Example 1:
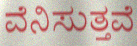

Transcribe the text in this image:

ವೆನಿಸುತ್ತವೆ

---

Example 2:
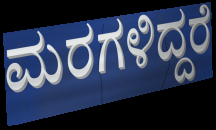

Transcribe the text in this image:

ಮರಗಳಿದ್ದರೆ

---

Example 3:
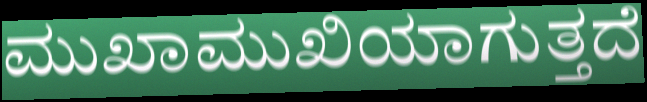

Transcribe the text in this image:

ಮುಖಾಮುಖಿಯಾಗುತ್ತದೆ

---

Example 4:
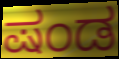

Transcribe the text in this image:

ಷಂಡ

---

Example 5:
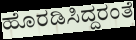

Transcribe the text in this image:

ಹೊರಡಿಸಿದ್ದರಂತೆ